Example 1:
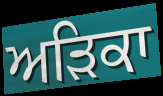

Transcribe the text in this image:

ਅੜਿਕਾ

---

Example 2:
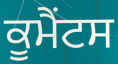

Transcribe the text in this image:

ਕੂਮੈਂਟਸ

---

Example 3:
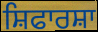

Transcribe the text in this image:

ਸ਼ਿਫਾਰਸ਼ਾ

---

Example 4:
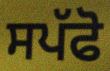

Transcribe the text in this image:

ਸਪੱਫੋ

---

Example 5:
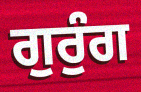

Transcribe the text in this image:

ਗੁਰੁੰਗ